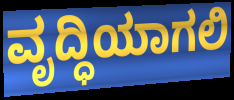
ವೃದ್ಧಿಯಾಗಲಿ